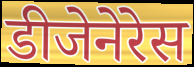
डीजेनेरेस